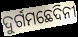
ଦୁର୍ଗମଛେଦିନୀ